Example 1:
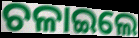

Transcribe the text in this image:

ଚଳାଇଲେ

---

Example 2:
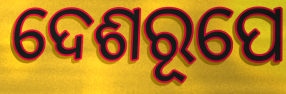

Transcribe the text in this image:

ଦେଶରୂପେ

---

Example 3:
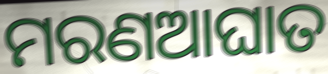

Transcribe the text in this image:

ମରଣଆଘାତ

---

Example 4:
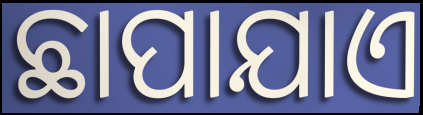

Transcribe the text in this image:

ଛାପାଯାଏ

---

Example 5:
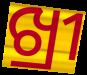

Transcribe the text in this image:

ଖ୍ରୀ